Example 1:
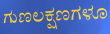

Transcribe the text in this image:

ಗುಣಲಕ್ಷಣಗಳೂ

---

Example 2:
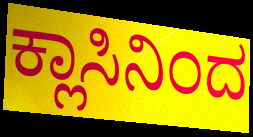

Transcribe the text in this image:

ಕ್ಲಾಸಿನಿಂದ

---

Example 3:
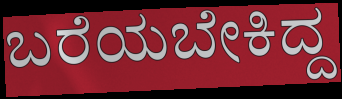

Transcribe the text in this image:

ಬರೆಯಬೇಕಿದ್ದ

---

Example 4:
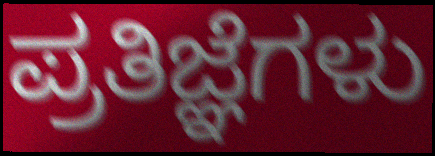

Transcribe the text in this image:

ಪ್ರತಿಜ್ಞೆಗಳು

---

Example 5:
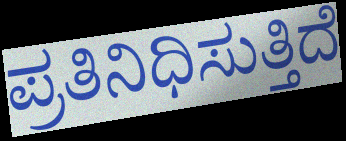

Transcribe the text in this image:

ಪ್ರತಿನಿಧಿಸುತ್ತಿದೆ